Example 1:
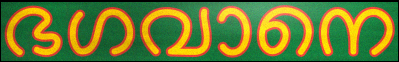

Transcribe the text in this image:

ഭഗവാനെ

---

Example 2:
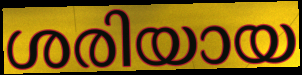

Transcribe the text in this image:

ശരിയായ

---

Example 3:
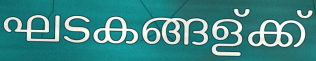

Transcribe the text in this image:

ഘടകങ്ങള്ക്ക്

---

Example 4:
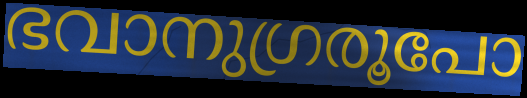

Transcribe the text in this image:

ഭവാനുഗ്രരൂപോ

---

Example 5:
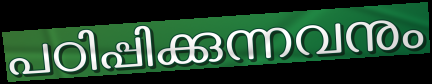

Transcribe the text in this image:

പഠിപ്പിക്കുന്നവനും